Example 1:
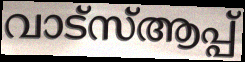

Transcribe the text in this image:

വാട്സ്ആപ്പ്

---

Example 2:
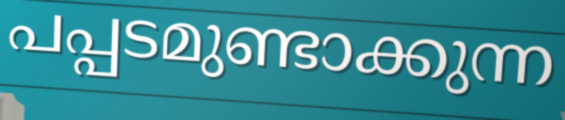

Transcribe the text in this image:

പപ്പടമുണ്ടാക്കുന്ന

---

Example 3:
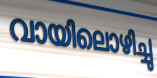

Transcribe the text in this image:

വായിലൊഴിച്ചു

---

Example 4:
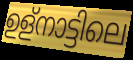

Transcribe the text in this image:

ഉള്നാട്ടിലെ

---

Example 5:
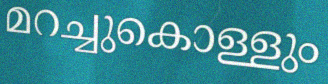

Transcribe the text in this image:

മറച്ചുകൊള്ളും